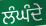
ਲੰਘੰਦੇ